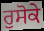
ਰੁਸੋਕੇ